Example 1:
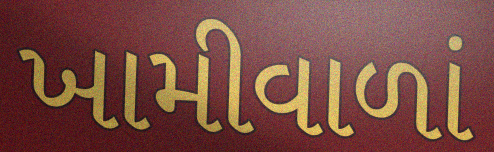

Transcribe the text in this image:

ખામીવાળાં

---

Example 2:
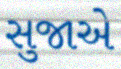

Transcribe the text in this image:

સુજાએ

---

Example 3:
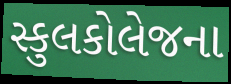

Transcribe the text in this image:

સ્કુલકોલેજના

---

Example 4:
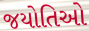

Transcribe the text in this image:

જયોતિઓ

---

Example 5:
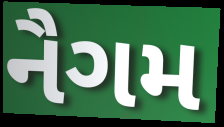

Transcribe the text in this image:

નૈગમ